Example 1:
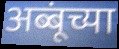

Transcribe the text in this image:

अब्बूंच्या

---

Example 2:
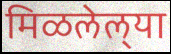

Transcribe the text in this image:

मिळलेल्या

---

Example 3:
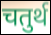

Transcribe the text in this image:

चतुर्थ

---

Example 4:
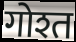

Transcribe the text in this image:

गोश्त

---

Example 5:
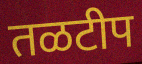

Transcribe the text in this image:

तळटीप